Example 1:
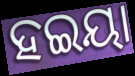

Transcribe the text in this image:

ହଇୟା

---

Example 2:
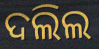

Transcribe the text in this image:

ଦଲିଲ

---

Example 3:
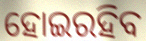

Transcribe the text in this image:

ହୋଇରହିବ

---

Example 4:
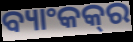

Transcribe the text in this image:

ବ୍ୟାଂକକ୍‍ର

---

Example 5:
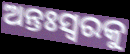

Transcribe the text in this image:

ଅନ୍ତଃସ୍ୱରକୁ